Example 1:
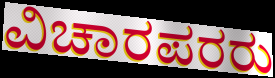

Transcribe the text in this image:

ವಿಚಾರಪರರು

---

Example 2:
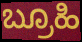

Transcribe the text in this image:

ಬ್ರೂಹಿ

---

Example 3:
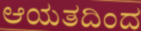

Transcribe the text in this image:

ಆಯತದಿಂದ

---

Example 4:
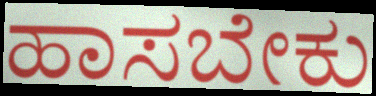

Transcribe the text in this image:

ಹಾಸಬೇಕು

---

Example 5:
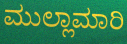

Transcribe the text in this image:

ಮುಲ್ಲಾಮಾರಿ